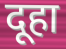
दूहा